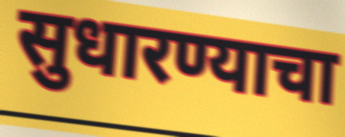
सुधारण्याचा